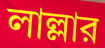
লাল্লার